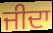
ਜੀਦਾ